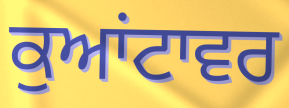
ਕੁਆਂਟਾਵਰ